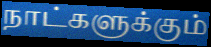
நாட்களுக்கும்